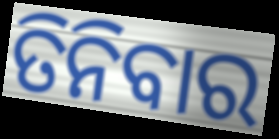
ତିନିବାର